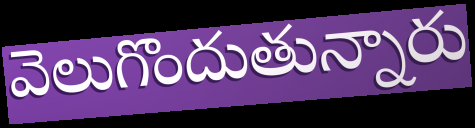
వెలుగొందుతున్నారు